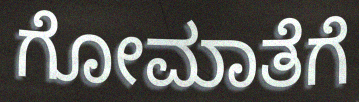
ಗೋಮಾತೆಗೆ